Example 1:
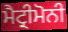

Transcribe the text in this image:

ਮੈਟ੍ਰੀਮੋਨੀ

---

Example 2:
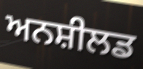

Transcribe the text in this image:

ਅਨਸ਼ੀਲਡ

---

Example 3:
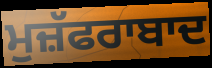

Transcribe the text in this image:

ਮੁਜ਼ੱਫਰਾਬਾਦ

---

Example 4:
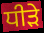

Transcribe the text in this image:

ਧੀੜੇ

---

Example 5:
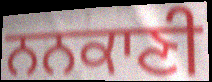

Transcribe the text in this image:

ਨਨਕਾਣੀ